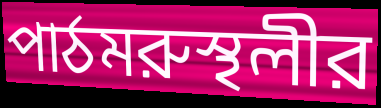
পাঠমরুস্থলীর